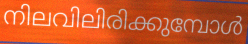
നിലവിലിരിക്കുമ്പോൾ